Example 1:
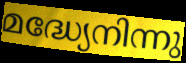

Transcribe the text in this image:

മദ്ധ്യേനിന്നു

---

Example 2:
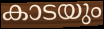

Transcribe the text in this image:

കാടയും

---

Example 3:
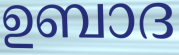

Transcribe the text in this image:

ഉബാദ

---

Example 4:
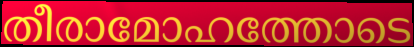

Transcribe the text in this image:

തീരാമോഹത്തോടെ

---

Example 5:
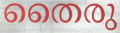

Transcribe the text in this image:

തൈരു